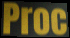
Proc